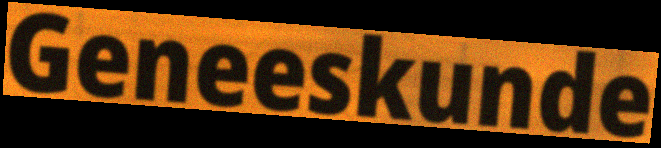
Geneeskunde